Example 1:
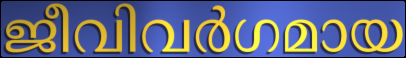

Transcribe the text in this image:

ജീവിവർഗമായ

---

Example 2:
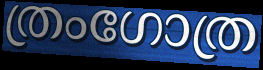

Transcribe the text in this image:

ത്രംഗോത്ര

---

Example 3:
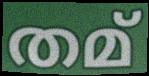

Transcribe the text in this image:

തമ്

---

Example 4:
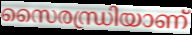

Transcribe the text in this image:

സൈരന്ധ്രിയാണ്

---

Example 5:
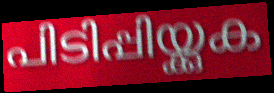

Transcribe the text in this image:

പിടിപ്പിയ്ക്കുക